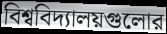
বিশ্ববিদ্যালয়গুলোর